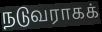
நடுவராகக்